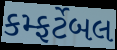
કમ્ફર્ટેબલ